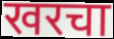
खरचा